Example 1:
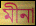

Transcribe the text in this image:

মীনা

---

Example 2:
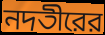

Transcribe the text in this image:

নদতীরের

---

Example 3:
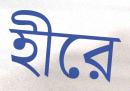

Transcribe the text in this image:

হীরে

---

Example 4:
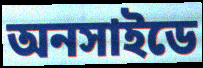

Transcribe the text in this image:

অনসাইডে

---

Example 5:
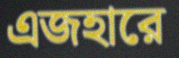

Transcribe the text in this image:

এজহারে